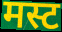
मस्ट